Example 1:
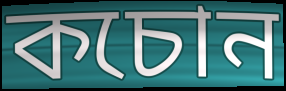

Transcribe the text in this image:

কচোন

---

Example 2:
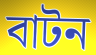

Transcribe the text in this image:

বাটন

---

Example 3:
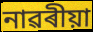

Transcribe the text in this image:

নাৱৰীয়া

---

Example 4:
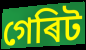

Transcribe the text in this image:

গেৰিট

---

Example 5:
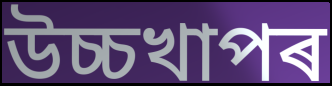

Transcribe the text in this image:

উচ্চখাপৰ